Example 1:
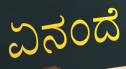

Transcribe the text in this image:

ಏನಂದೆ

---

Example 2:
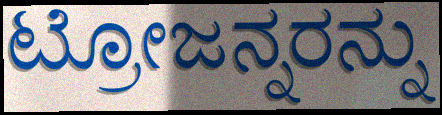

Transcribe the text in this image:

ಟ್ರೋಜನ್ನರನ್ನು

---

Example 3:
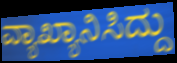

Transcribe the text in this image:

ವ್ಯಾಖ್ಯಾನಿಸಿದ್ದು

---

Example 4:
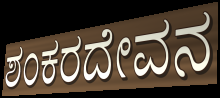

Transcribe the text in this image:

ಶಂಕರದೇವನ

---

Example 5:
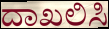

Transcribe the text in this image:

ದಾಖಲಿಸಿ